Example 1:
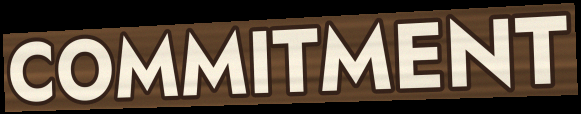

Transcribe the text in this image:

COMMITMENT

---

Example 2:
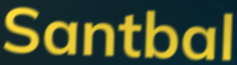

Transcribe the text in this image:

Santbal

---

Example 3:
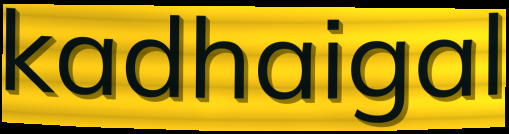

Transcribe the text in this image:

kadhaigal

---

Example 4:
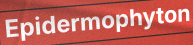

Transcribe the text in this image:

Epidermophyton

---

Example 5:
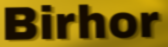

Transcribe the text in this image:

Birhor